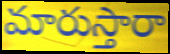
మారుస్తారా